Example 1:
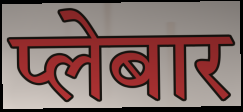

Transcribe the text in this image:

प्लेबार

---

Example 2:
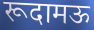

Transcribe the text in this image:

रूदामऊ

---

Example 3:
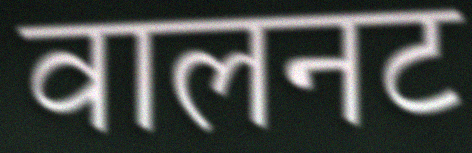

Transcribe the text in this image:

वालनट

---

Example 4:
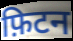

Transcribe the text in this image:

फ़िटन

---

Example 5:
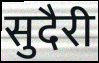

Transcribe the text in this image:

सुदैरी